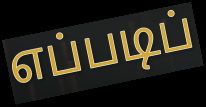
எப்படிப்